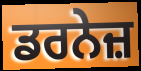
ਡਰਨੇਜ਼